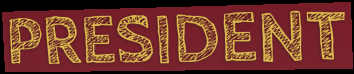
PRESIDENT